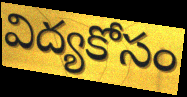
విద్యకోసం